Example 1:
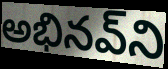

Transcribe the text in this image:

అభినవ్‌ని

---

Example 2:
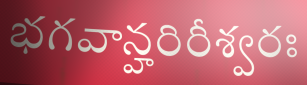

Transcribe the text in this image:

భగవాన్హరిరీశ్వరః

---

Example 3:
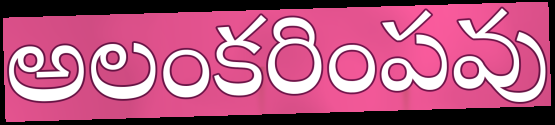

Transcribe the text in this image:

అలంకరింపవు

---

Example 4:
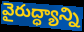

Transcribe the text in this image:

వైరుద్ధ్యాన్ని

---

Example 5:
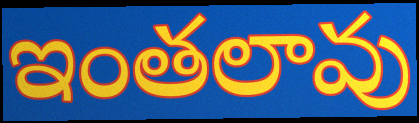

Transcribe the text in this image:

ఇంతలావు